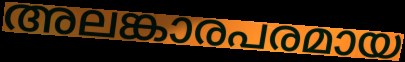
അലങ്കാരപരമായ